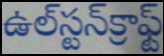
ఉల్‌స్టన్‌క్రాఫ్ట్